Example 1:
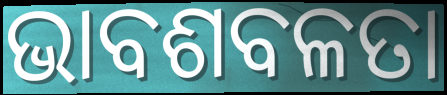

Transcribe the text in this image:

ଭାବଶବଳତା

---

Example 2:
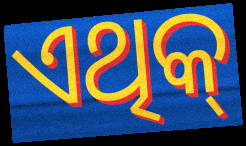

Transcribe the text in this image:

ଏଥିକ୍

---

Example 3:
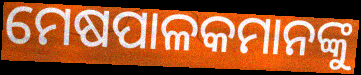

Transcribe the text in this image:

ମେଷପାଳକମାନଙ୍କୁ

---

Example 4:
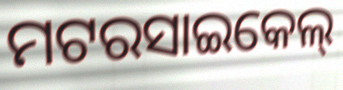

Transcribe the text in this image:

ମଟରସାଇକେଲ୍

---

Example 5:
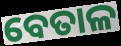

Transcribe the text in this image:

ବେତାଳ